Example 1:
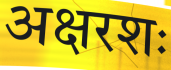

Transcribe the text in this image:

अक्षरशः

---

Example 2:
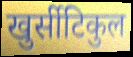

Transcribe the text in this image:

खुर्सीटिकुल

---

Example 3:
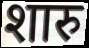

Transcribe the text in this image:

शारु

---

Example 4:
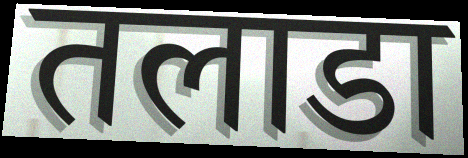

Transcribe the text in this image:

तलाडा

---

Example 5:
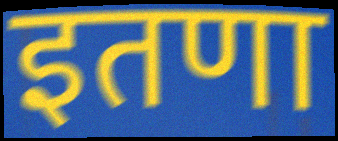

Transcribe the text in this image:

इतणा